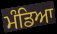
ਮੰਡਿਆ